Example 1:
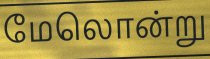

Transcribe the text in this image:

மேலொன்று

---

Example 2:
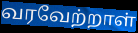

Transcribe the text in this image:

வரவேற்றாள்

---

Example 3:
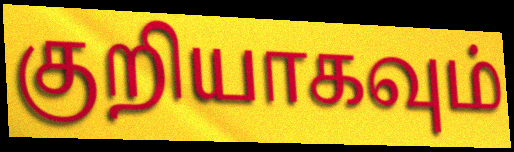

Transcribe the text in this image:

குறியாகவும்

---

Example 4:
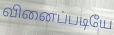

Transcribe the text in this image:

வினைப்படியே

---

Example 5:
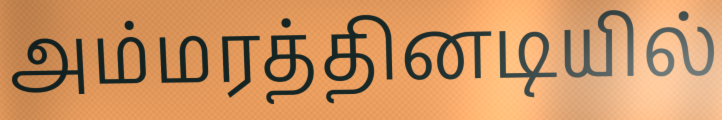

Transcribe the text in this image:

அம்மரத்தினடியில்